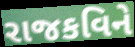
રાજકવિને